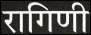
रागिणी